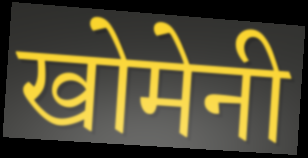
खोमेनी